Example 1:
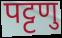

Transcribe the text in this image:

पट्टणु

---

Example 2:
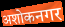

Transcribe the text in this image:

अशोकनगर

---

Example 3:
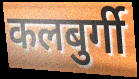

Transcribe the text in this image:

कलबुर्गी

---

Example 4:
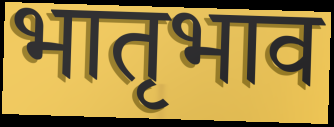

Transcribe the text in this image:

भातृभाव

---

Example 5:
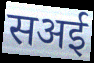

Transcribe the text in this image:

सअई